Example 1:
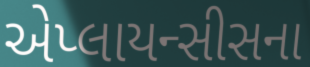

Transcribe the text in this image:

એપ્લાયન્સીસના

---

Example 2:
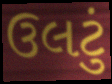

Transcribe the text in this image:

ઉલટું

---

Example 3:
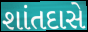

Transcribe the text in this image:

શાંતદાસે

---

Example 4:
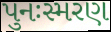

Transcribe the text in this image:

પુનઃસ્મરણ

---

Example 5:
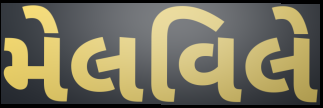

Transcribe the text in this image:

મેલવિલે